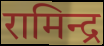
रामिन्द्र